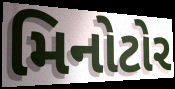
મિનોટોર